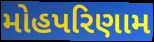
મોહપરિણામ